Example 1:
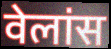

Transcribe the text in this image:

वेलांस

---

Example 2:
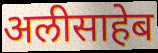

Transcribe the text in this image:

अलीसाहेब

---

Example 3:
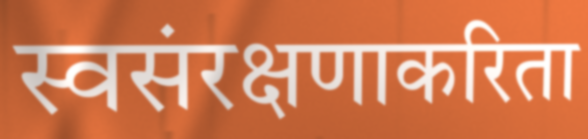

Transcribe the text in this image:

स्वसंरक्षणाकरिता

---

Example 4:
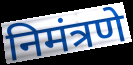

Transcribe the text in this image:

निमंत्रणे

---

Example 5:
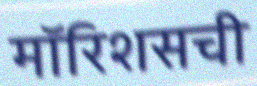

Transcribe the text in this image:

मॉरिशसची